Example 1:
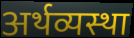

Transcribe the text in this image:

अर्थव्यस्था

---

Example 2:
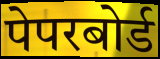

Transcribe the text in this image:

पेपरबोर्ड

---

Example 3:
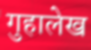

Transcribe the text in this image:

गुहालेख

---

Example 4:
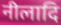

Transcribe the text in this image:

नीलादि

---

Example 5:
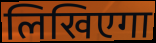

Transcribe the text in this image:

लिखिएगा